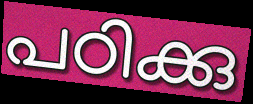
പഠിക്കു